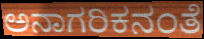
ಅನಾಗರಿಕನಂತೆ